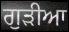
ਗੁਡ਼ੀਆ